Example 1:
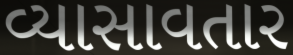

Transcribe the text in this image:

વ્યાસાવતાર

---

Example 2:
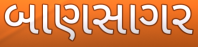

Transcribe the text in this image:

બાણસાગર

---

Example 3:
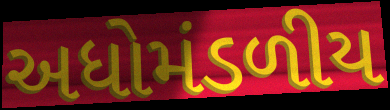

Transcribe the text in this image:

અધોમંડળીય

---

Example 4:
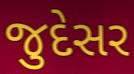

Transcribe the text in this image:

જુદેસર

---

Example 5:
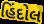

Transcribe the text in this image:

હિંદોલ